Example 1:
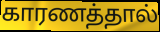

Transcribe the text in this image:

காரணத்தால்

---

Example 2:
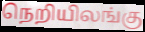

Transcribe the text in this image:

நெறியிலங்கு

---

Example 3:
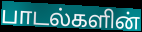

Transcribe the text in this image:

பாடல்களின்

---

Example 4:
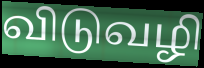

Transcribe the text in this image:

விடுவழி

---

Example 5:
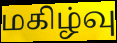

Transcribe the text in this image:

மகிழ்வு